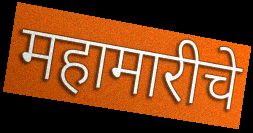
महामारीचे